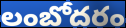
లంబోదరం